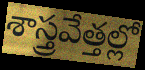
శాస్త్రవేత్తల్లో